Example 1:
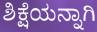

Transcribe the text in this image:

ಶಿಕ್ಷೆಯನ್ನಾಗಿ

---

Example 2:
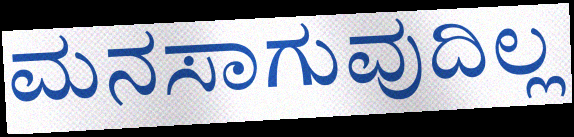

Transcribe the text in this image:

ಮನಸಾಗುವುದಿಲ್ಲ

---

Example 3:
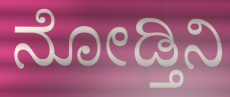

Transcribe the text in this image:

ನೋಡ್ತಿನಿ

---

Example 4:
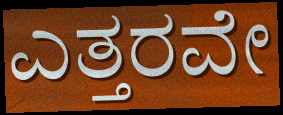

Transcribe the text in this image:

ಎತ್ತರವೇ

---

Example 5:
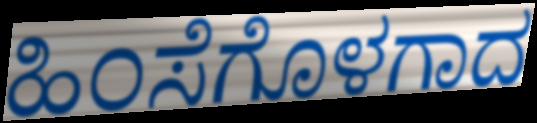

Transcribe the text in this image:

ಹಿಂಸೆಗೊಳಗಾದ